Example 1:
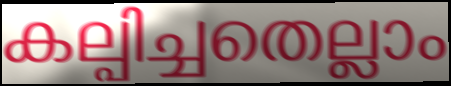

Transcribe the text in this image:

കല്പിച്ചതെല്ലാം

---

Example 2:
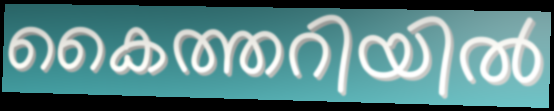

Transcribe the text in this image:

കൈത്തറിയിൽ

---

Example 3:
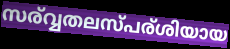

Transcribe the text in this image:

സര്വ്വതലസ്പര്ശിയായ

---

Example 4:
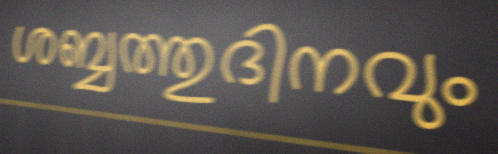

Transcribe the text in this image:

ശബ്ബത്തുദിനവും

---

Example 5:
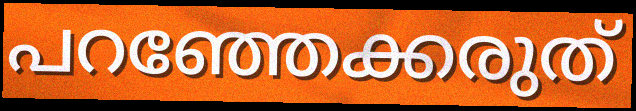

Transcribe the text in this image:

പറഞ്ഞേക്കരുത്